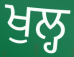
ਖੁਲ੍ਹ